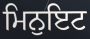
ਮਿਨੁਇਟ